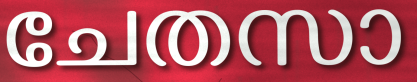
ചേതസാ